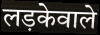
लड़केवाले